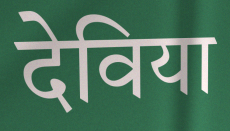
देविया